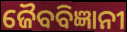
ଜୈବବିଜ୍ଞାନୀ